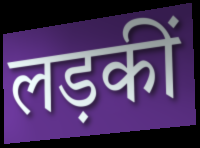
लड़कीं